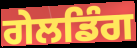
ਗੇਲਡਿੰਗ